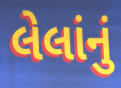
લેલાંનું